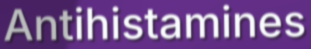
Antihistamines